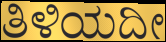
ತಿಳಿಯದೀ